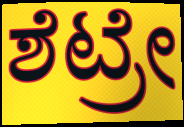
ಶೆಟ್ರೇ